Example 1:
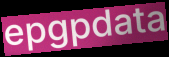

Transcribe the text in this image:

epgpdata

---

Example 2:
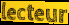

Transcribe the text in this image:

lecteur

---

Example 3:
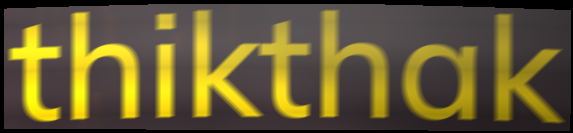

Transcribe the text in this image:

thikthak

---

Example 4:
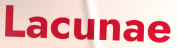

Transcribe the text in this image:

Lacunae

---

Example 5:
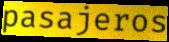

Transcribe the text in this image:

pasajeros